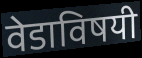
वेडाविषयी